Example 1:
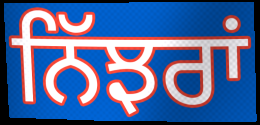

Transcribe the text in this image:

ਨਿੱਝਰਾਂ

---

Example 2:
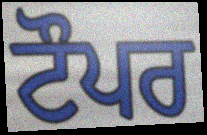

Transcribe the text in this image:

ਟੌਪਰ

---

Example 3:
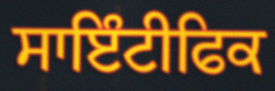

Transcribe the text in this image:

ਸਾਇੰਟੀਫਿਕ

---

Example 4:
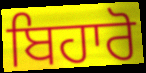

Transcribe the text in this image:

ਬਿਹਾਰੋ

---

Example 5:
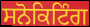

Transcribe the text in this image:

ਸਨੋਕਿਟਿੰਗ